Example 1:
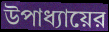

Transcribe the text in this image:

উপাধ্যায়ের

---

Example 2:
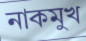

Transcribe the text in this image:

নাকমুখ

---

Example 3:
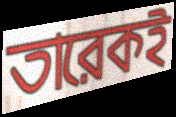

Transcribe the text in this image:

তারেকই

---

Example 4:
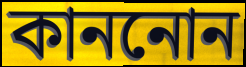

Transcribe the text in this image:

কাননোন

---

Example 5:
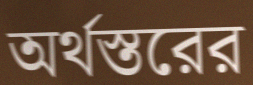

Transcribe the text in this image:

অর্থস্তরের